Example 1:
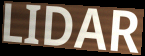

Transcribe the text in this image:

LIDAR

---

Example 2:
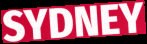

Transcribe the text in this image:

SYDNEY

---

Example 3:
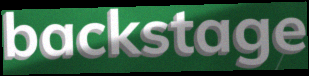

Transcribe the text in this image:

backstage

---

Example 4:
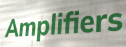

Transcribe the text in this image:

Amplifiers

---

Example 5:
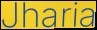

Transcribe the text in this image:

Jharia